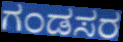
ಗಂಡಸರ